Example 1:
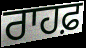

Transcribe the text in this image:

ਰਾਹਫ਼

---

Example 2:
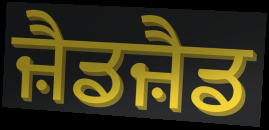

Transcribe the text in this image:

ਜ਼ੈਡਜ਼ੈਡ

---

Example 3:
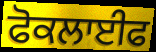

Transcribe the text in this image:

ਫੋਕਲਾਈਫ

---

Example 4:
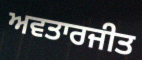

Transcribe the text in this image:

ਅਵਤਾਰਜੀਤ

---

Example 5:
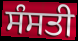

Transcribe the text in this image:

ਸੰਸਤੀ